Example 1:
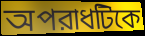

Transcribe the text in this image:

অপরাধটিকে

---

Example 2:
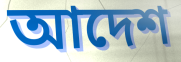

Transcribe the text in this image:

আদেশ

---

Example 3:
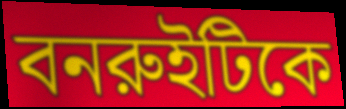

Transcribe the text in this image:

বনরুইটিকে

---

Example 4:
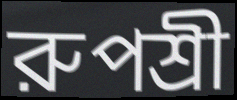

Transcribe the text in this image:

রুপশ্রী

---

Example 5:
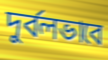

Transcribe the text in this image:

দুর্বলভাবে